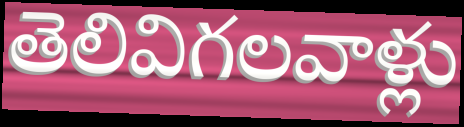
తెలివిగలవాళ్లు